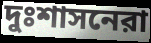
দুঃশাসনেরা